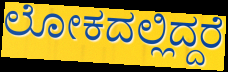
ಲೋಕದಲ್ಲಿದ್ದರೆ